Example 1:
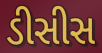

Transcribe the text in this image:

ડીસીસ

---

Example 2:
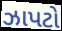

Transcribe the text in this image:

ઝાપટો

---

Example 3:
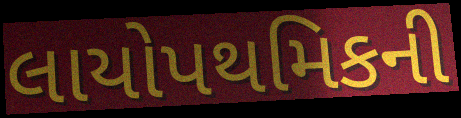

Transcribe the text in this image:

લાયોપથમિકની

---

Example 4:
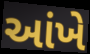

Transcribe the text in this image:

આંખે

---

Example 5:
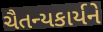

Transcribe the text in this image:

ચૈતન્યકાર્યને